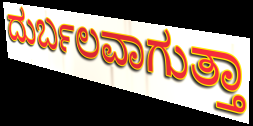
ದುರ್ಬಲವಾಗುತ್ತಾ